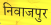
निवाजपुर